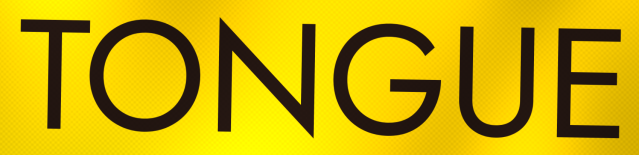
TONGUE